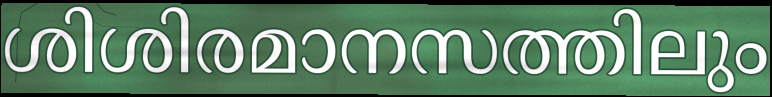
ശിശിരമാനസത്തിലും